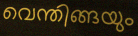
വെന്തിങ്ങയും